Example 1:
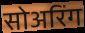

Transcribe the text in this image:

सोअरिंग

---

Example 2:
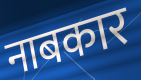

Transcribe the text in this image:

नाबकार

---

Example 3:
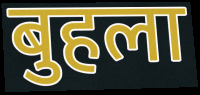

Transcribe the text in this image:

बुहला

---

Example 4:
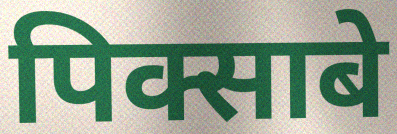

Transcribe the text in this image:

पिक्साबे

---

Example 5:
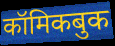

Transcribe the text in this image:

कॉमिकबुक